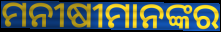
ମନୀଷୀମାନଙ୍କର